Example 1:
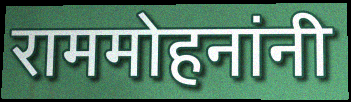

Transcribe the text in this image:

राममोहनांनी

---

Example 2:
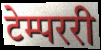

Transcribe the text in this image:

टेम्पररी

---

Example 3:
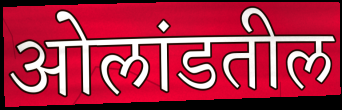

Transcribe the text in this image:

ओलांडतील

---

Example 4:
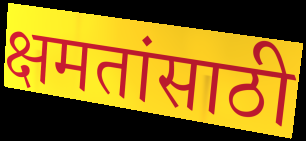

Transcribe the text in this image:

क्षमतांसाठी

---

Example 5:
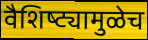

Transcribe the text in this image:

वैशिष्ट्यामुळेच